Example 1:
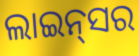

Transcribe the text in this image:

ଲାଇନ୍‌ସର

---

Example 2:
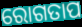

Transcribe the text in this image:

ରୋଗତାପ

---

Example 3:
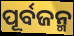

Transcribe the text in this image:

ପୂର୍ବଜନ୍ମ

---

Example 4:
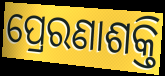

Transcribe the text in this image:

ପ୍ରେରଣାଶକ୍ତି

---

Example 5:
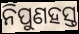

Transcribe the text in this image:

ନିପୁଣହସ୍ତ